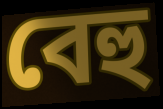
বেহু